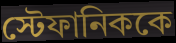
স্টেফানিককে